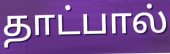
தாட்பால்